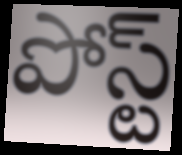
పోస్ట్